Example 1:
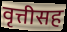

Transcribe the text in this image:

वृत्तीसह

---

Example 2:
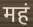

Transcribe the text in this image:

महं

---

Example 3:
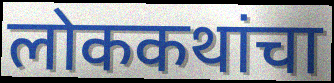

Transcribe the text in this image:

लोककथांचा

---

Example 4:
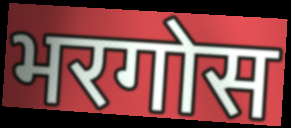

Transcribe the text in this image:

भरगोस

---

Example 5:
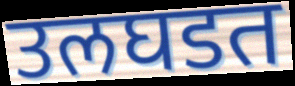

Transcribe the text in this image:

उलघडत